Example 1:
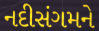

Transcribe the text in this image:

નદીસંગમને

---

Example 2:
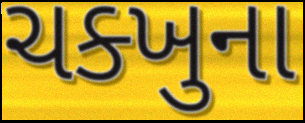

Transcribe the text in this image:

ચક્ખુના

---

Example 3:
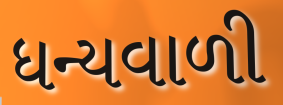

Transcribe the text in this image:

ધન્યવાળી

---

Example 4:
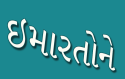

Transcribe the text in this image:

ઇમારતોને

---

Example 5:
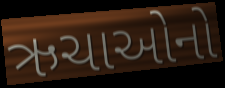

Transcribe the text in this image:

ઋચાઓનો